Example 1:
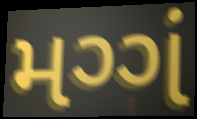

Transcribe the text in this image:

મગ્ગં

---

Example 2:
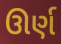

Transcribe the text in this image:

ઊર્ણ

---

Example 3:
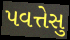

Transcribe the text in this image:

પવત્તેસુ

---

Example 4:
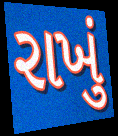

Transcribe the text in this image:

રાખું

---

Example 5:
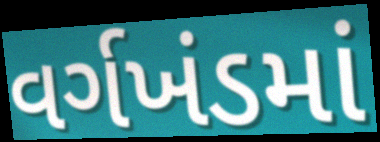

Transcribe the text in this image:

વર્ગખંડમાં